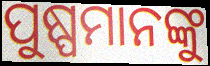
ପୁଷ୍ପମାନଙ୍କୁ